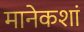
मानेकशां